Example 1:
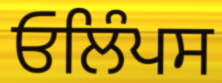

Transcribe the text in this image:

ਓਲਿੰਪਸ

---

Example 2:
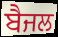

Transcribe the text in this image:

ਬੈਜਲ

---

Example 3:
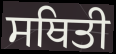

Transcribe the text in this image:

ਸਥਿਤੀ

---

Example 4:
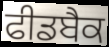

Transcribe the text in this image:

ਫੀਡਬੈਕ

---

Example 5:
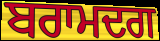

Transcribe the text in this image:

ਬਰਾਮਦਗ